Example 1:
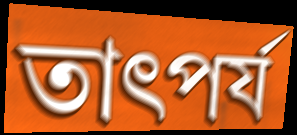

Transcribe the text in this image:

তাৎপৰ্য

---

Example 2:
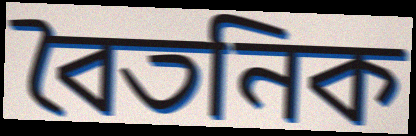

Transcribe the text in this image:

বৈতনিক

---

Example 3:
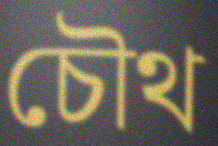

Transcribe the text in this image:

চৌথ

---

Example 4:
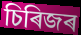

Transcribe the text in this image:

চিৰিজৰ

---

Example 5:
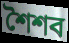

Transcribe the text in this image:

শৈশব